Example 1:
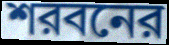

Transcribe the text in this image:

শরবনের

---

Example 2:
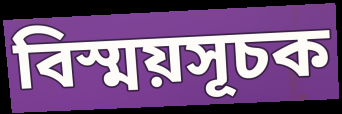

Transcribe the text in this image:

বিস্ময়সূচক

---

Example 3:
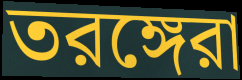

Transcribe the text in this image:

তরঙ্গেরা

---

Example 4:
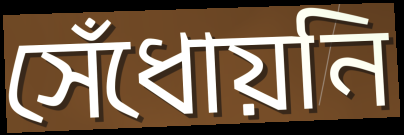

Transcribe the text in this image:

সেঁধোয়নি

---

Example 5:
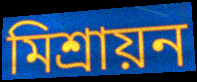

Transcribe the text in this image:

মিশ্রায়ন